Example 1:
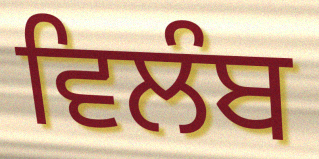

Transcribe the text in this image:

ਵਿਲੰਬ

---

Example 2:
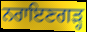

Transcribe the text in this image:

ਨਰਾਇਣਗੜ੍ਹ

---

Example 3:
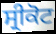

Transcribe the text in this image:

ਸ੍ਰੀਕੋਟ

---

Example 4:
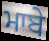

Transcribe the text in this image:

ਮਾਬੇ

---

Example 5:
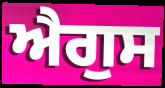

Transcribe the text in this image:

ਐਗੁਸ